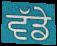
ਵੱਡੇ